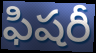
ఫిషరీ